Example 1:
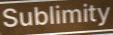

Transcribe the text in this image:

Sublimity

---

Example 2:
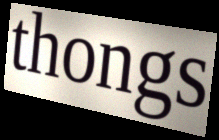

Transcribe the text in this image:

thongs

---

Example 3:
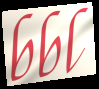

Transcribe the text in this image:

bbl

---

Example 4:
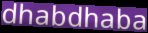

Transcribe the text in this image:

dhabdhaba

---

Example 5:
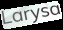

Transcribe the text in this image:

Larysa